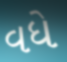
વધે